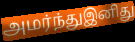
அமர்ந்துஇனிது